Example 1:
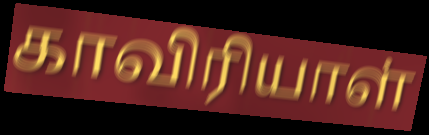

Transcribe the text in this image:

காவிரியாள்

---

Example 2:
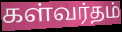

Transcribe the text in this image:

கள்வர்தம்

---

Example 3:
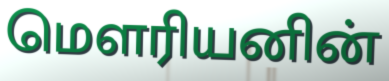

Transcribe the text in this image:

மௌரியனின்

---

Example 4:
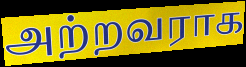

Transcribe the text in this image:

அற்றவராக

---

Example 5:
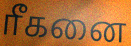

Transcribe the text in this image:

ரீகனை